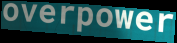
overpower